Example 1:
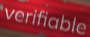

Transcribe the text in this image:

verifiable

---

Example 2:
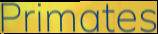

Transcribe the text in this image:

Primates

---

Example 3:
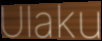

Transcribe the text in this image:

Ulaku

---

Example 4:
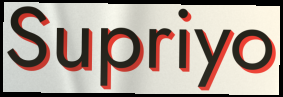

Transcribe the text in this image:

Supriyo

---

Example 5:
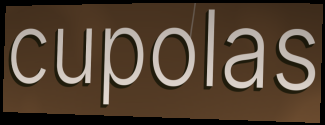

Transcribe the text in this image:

cupolas